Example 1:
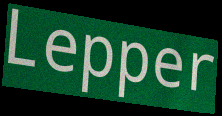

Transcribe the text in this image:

Lepper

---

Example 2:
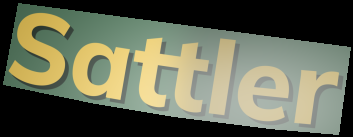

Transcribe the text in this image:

Sattler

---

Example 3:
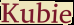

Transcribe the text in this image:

Kubie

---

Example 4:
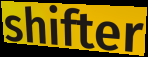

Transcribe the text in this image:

shifter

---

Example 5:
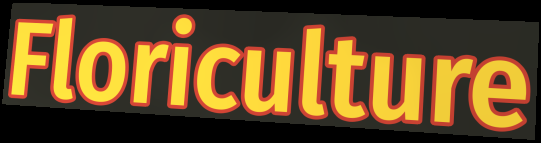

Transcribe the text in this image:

Floriculture